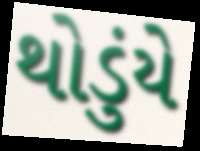
થોડુંયે